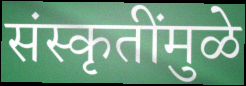
संस्कृतींमुळे